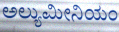
ಅಲ್ಯುಮೀನಿಯಂ